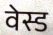
वेस्ड